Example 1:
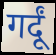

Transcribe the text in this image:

गर्दूं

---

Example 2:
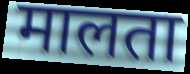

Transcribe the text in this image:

मालता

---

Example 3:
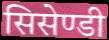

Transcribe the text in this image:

सिसेण्डी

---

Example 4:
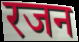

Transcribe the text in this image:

रजन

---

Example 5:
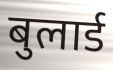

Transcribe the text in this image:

बुलार्ड